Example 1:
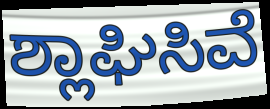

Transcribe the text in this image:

ಶ್ಲಾಘಿಸಿವೆ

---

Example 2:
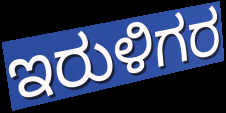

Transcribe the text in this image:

ಇರುಳಿಗರ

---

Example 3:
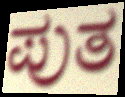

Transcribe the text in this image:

ಪುತ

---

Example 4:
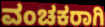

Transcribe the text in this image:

ವಂಚಕರಾಗಿ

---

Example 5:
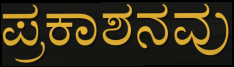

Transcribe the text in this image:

ಪ್ರಕಾಶನವು